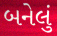
બનેલું